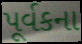
પૂર્વકના